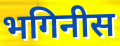
भगिनीस